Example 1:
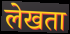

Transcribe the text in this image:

लेखता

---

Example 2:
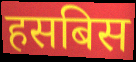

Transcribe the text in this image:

हसबिस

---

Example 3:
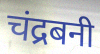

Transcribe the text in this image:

चंद्रबनी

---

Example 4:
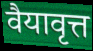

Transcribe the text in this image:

वैयावृत्त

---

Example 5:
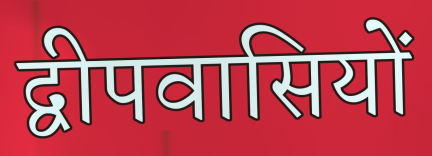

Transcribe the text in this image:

द्वीपवासियों